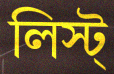
লিস্ট্